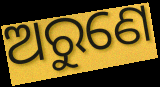
ଅରୁଣେ